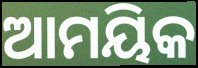
ଆମୟିକ